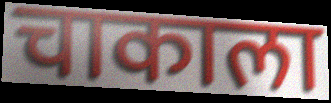
चाकाला